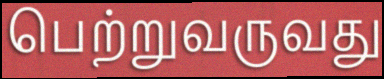
பெற்றுவருவது